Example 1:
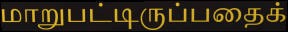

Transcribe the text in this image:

மாறுபட்டிருப்பதைக்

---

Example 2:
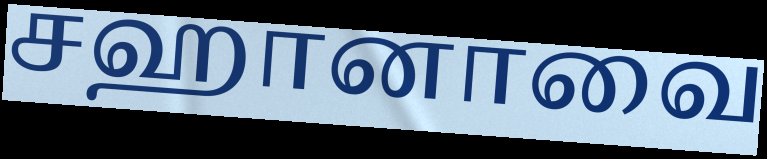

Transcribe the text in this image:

சஹானாவை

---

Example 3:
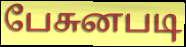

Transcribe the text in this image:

பேசுனபடி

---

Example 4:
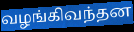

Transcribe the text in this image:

வழங்கிவந்தன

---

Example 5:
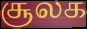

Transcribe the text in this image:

சூலக